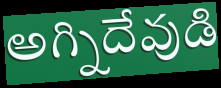
అగ్నిదేవుడి